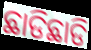
ଛାଡିଛାଡି